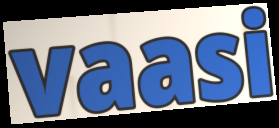
vaasi